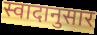
स्वादानुसार